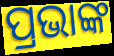
ପ୍ରଭାଙ୍କ